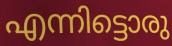
എന്നിട്ടൊരു